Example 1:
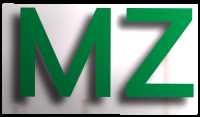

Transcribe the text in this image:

MZ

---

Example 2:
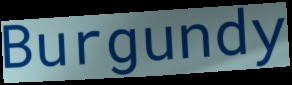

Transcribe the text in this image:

Burgundy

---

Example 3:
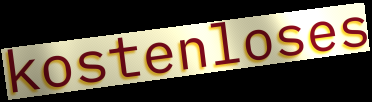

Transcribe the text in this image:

kostenloses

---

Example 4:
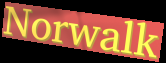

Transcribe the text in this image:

Norwalk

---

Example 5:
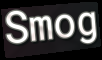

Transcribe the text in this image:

Smog